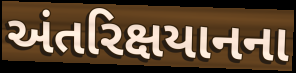
અંતરિક્ષયાનના